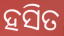
ହସିତ